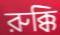
রুক্কি